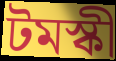
টমস্কী